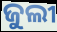
ଜୁଲୀ